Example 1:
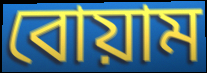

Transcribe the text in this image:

বোয়াম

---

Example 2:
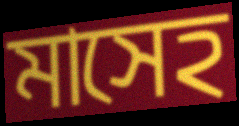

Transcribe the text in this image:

মাসেহ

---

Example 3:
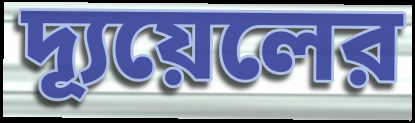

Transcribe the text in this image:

দ্যূয়েলের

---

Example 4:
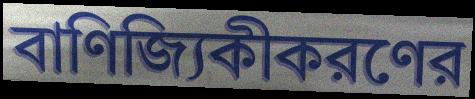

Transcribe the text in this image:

বাণিজ্যিকীকরণের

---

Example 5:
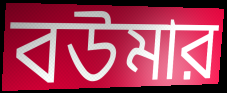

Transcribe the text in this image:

বউমার